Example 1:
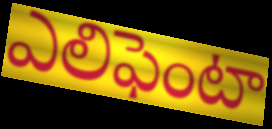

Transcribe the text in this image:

ఎలిఫెంటా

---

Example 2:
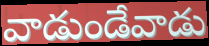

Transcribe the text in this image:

వాడుండేవాడు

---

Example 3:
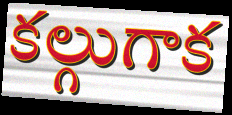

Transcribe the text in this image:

కల్గుగాక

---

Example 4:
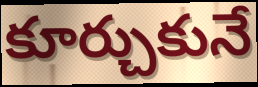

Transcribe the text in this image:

కూర్చుకునే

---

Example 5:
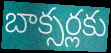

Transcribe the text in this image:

బాక్సర్లకు